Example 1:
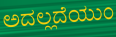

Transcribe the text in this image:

ಅದಲ್ಲದೆಯುಂ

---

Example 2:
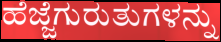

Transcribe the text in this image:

ಹೆಜ್ಜೆಗುರುತುಗಳನ್ನು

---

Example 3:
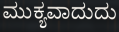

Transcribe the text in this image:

ಮುಕ್ಯವಾದುದು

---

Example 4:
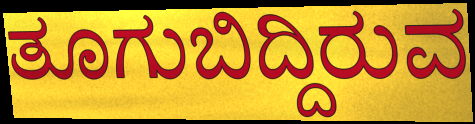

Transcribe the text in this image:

ತೂಗುಬಿದ್ದಿರುವ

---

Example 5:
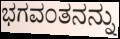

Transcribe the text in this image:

ಭಗವಂತನನ್ನು